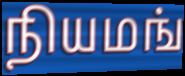
நியமங்